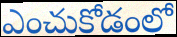
ఎంచుకోడంలో